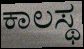
ಕಾಲಸ್ಥ